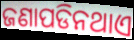
ଜଣାପଡିନଥାଏ